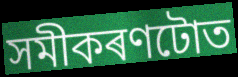
সমীকৰণটোত